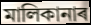
মালিকানাৰ